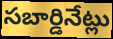
సబార్డినేట్లు